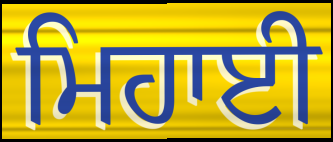
ਮਿਹਾਈ